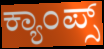
ಕ್ಯಾಂಪ್ಸ್